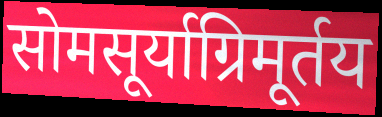
सोमसूर्याग्रिमूर्तय